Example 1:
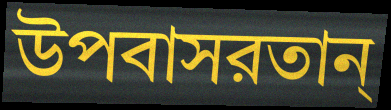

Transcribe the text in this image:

উপবাসরতান্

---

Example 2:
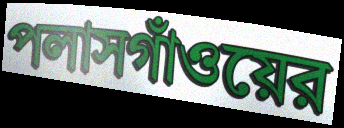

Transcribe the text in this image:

পলাসগাঁওয়ের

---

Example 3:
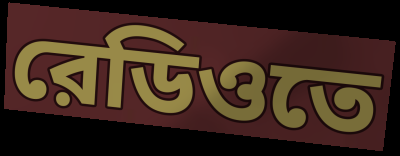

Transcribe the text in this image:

রেডিওতে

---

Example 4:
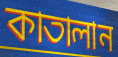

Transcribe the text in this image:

কাতালান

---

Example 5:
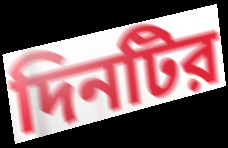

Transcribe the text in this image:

দিনটির